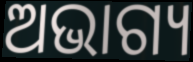
ଅଭାଗ୍ୟ